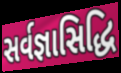
સર્વજ્ઞાસિદ્ધિ